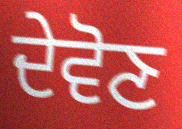
ਦੇਵੋਣ